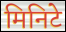
मिनिटे